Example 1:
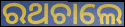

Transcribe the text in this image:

ରଥଚାଲେ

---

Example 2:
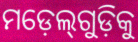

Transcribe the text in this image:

ମଡ଼େଲ୍‌ଗୁଡ଼ିକୁ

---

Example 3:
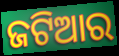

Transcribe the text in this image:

ଜଟିଆର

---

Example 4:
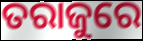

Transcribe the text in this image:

ତରାଜୁରେ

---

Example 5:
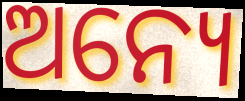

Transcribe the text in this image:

ଅନ୍ୟେ